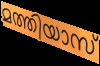
മത്തിയാസ്